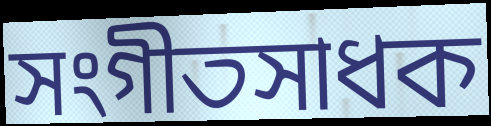
সংগীতসাধক